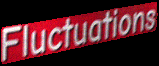
Fluctuations